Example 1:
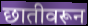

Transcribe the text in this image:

छातीवरून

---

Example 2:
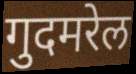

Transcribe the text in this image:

गुदमरेल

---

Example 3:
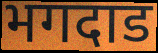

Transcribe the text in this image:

भगदाड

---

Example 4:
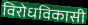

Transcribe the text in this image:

विरोधविकासी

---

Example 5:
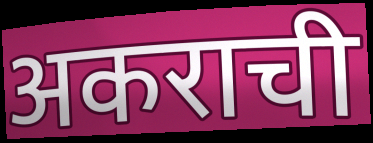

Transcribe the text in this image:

अकराची